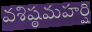
వశిష్ఠమహర్షి